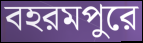
বহরমপুরে